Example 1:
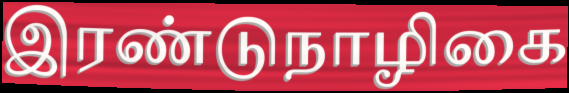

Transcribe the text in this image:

இரண்டுநாழிகை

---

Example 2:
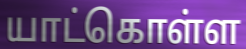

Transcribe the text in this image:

யாட்கொள்ள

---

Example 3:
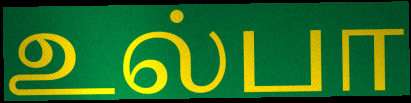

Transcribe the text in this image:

உல்பா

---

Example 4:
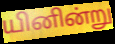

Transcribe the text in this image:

யினின்று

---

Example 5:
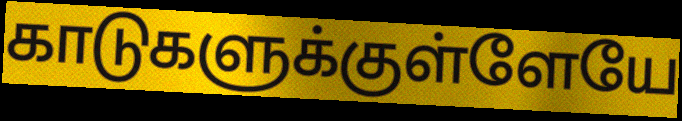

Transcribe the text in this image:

காடுகளுக்குள்ளேயே